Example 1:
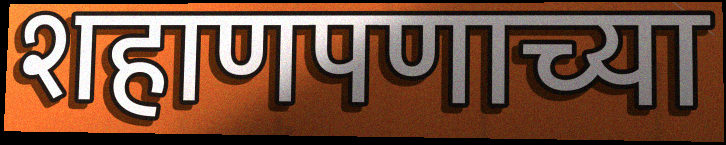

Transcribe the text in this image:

शहाणपणाच्या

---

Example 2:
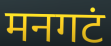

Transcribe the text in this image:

मनगटं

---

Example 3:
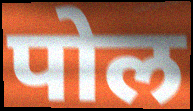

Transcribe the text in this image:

पोल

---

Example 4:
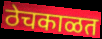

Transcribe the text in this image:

ठेचकाळत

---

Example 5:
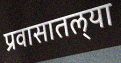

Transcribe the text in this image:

प्रवासातल्या